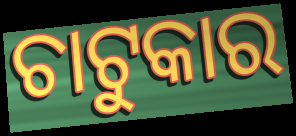
ଚାଟୁକାର